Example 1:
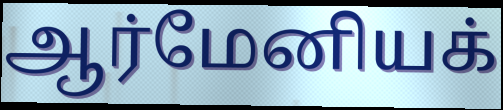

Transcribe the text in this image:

ஆர்மேனியக்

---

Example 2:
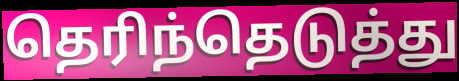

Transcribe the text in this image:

தெரிந்தெடுத்து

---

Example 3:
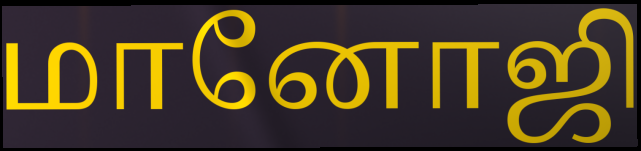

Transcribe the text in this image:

மானோஜி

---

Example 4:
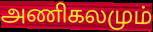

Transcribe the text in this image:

அணிகலமும்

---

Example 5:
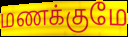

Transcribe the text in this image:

மணக்குமே